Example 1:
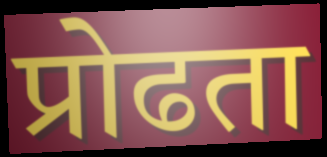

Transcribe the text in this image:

प्रोढता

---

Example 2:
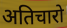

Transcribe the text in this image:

अतिचारो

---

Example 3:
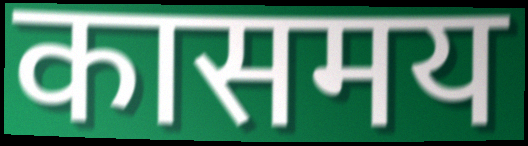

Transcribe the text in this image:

कासमय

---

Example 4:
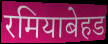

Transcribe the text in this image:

रमियाबेहड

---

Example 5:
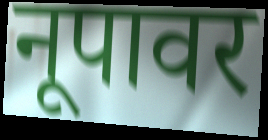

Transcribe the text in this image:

नूपावर